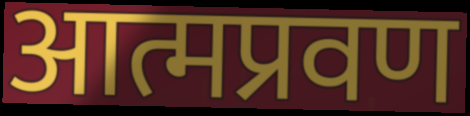
आत्मप्रवण